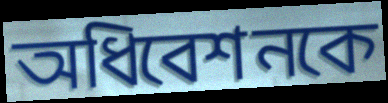
অধিবেশনকে